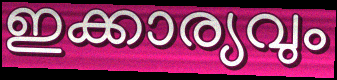
ഇക്കാര്യവും